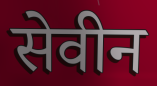
सेवीन